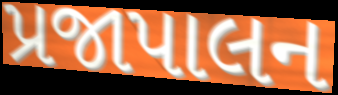
પ્રજાપાલન